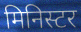
मिनिस्टर